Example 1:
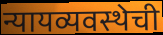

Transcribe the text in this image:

न्यायव्यवस्थेची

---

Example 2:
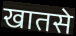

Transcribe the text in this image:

खातसे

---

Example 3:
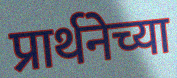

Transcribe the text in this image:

प्रार्थनेच्या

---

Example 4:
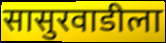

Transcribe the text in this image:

सासुरवाडीला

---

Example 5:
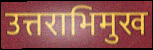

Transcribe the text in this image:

उत्तराभिमुख